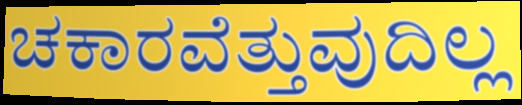
ಚಕಾರವೆತ್ತುವುದಿಲ್ಲ